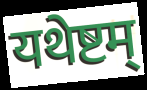
यथेष्टम्